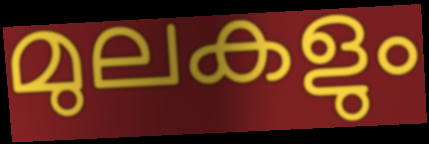
മുലകളും